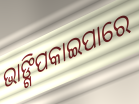
ଭାଙ୍ଗିପକାଇପାରେ